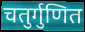
चतुर्गुणित